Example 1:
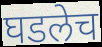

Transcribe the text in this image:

घडलेच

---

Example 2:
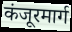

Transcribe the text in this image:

कंजूरमार्ग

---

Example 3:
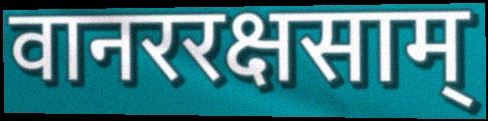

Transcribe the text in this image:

वानररक्षसाम्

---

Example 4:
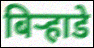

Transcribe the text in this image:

बिऱ्हाडे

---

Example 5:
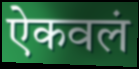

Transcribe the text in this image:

ऐकवलं